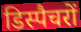
डिस्पैचरों